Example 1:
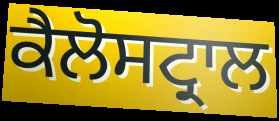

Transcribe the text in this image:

ਕੈਲੋਸਟ੍ਰਾਲ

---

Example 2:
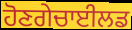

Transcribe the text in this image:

ਹੋਣਗੇਚਾਈਲਡ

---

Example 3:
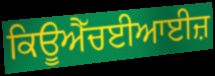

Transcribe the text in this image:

ਕਿਊਐੱਚਈਆਈਜ਼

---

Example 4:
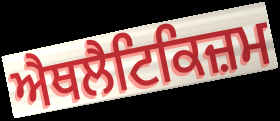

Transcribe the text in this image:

ਐਥਲੈਟਿਕਿਜ਼ਮ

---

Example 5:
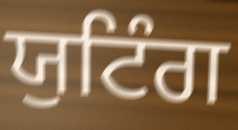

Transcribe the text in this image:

ਯੁਟਿੰਗ